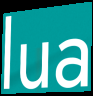
lua